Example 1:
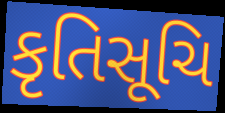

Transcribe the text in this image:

કૃતિસૂચિ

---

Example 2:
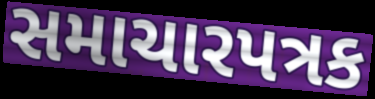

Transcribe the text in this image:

સમાચારપત્રક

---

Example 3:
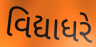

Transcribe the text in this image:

વિદ્યાધરે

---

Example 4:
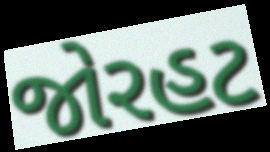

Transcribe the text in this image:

જોરહટ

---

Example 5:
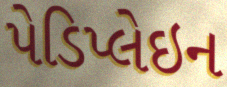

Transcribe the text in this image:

પેડિપ્લેઇન